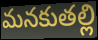
మనకుతల్లి